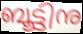
ബൂട്ടിനു